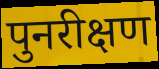
पुनरीक्षण